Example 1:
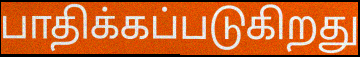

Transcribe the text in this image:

பாதிக்கப்படுகிறது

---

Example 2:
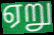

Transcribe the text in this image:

ஏறு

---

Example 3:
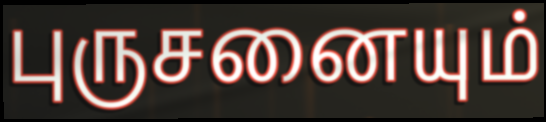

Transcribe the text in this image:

புருசனையும்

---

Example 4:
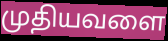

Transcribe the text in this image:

முதியவளை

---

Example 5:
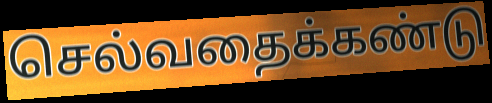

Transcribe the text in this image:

செல்வதைக்கண்டு